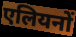
एलियनों